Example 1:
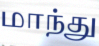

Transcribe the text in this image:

மாந்து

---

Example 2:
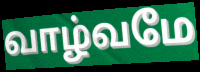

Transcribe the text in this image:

வாழ்வமே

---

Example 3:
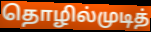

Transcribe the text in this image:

தொழில்முடித்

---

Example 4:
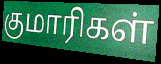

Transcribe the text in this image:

குமாரிகள்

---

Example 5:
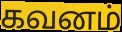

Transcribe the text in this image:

கவனம்